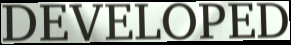
DEVELOPED